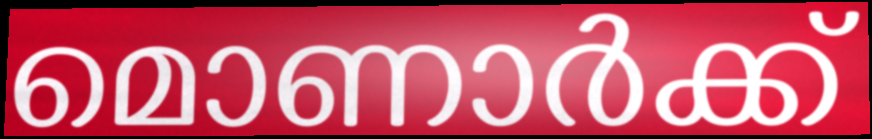
മൊണാർക്ക്